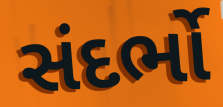
સંદર્ભો